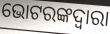
ଭୋଟରଙ୍କଦ୍ଵାରା